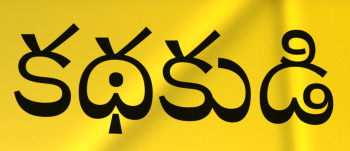
కథకుడి